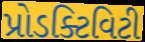
પ્રોડક્ટિવિટી